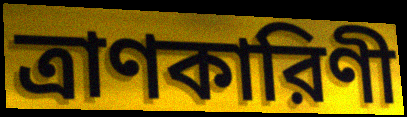
ত্রাণকারিণী